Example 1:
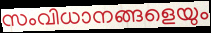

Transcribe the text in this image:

സംവിധാനങ്ങളെയും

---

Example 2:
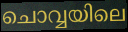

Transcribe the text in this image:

ചൊവ്വയിലെ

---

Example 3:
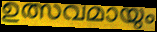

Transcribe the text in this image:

ഉത്സവമായും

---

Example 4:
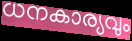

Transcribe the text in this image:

ധനകാര്യവും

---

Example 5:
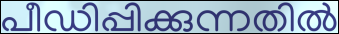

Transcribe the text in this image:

പീഡിപ്പിക്കുന്നതിൽ